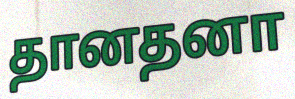
தானதனா